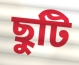
ছুটি